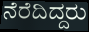
ನೆರೆದಿದ್ದರು